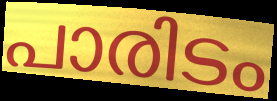
പാരിടം